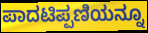
ಪಾದಟಿಪ್ಪಣಿಯನ್ನೂ